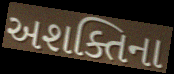
અશક્તિના